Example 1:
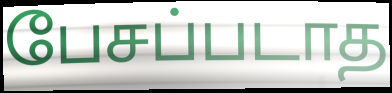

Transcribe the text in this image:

பேசப்படாத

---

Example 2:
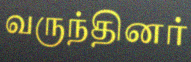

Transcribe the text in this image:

வருந்தினர்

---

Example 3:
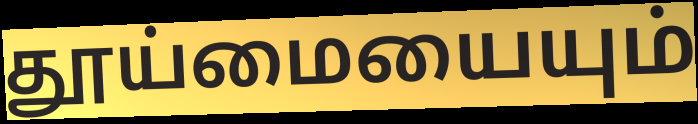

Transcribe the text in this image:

தூய்மையையும்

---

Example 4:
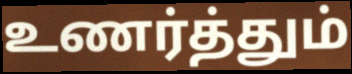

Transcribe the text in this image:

உணர்த்தும்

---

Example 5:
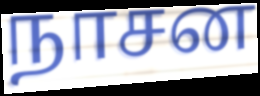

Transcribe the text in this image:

நாசன